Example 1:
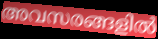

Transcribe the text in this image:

അവസരങ്ങളിൽ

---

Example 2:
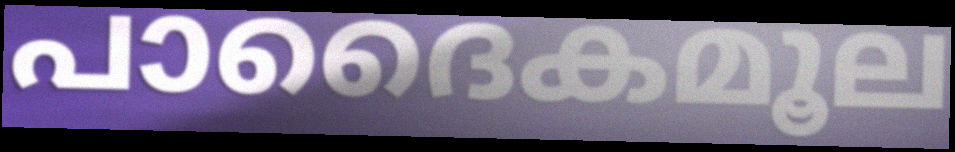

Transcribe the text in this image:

പാദൈകമൂല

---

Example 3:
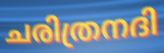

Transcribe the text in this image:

ചരിത്രനദി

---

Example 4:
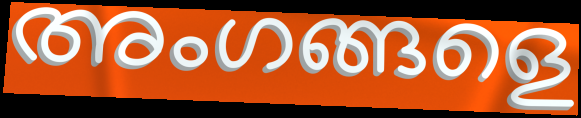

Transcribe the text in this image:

അംഗങ്ങളെ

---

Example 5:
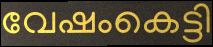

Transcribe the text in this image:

വേഷംകെട്ടി